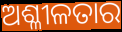
ଅଶ୍ଳୀଳତାର